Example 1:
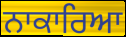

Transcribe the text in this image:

ਨਾਕਾਰਿਆ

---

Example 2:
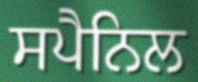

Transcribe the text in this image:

ਸਪੈਨਿਲ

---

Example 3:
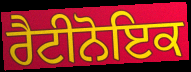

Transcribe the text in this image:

ਰੈਟੀਨੋਇਕ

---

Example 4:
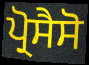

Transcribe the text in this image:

ਪ੍ਰੋਸੈਸੋ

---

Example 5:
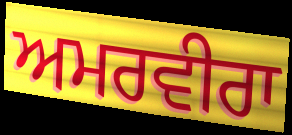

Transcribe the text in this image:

ਅਮਰਵੀਰਾ